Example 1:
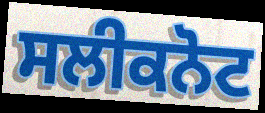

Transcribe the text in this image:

ਸਲੀਕਨੋਟ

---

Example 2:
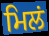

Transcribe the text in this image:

ਮਿਲਂ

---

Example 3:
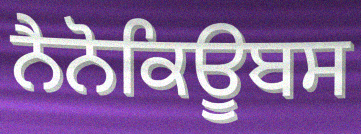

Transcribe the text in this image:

ਨੈਨੋਕਿਊਬਸ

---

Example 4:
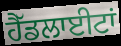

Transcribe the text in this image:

ਹੈੱਡਲਾਈਟਾਂ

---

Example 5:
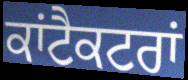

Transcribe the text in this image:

ਕਾਂਟੈਕਟਰਾਂ